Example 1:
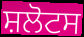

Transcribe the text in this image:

ਸ਼ਲੋਟਸ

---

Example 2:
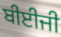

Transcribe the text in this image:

ਬੀਈਜੀ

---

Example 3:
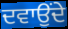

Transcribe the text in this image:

ਦਵਾਉਂਦੇ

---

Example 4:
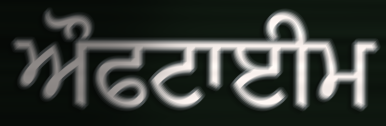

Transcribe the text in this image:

ਔਫਟਾਈਮ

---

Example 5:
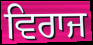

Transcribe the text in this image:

ਵਿਰਾਜ